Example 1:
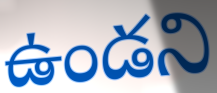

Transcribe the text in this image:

ఉండని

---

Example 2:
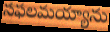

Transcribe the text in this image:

సఫలమయ్యాను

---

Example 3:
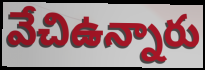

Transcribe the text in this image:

వేచిఉన్నారు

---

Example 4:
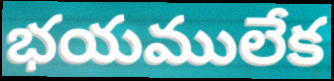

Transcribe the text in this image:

భయములేక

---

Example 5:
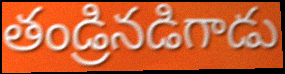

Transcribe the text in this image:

తండ్రినడిగాడు